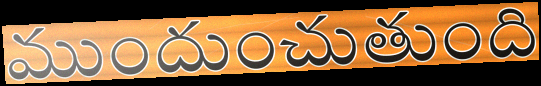
ముందుంచుతుంది